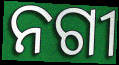
ନଗୀ